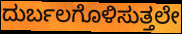
ದುರ್ಬಲಗೊಳಿಸುತ್ತಲೇ